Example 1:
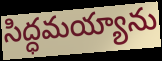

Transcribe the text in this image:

సిద్ధమయ్యాను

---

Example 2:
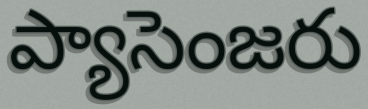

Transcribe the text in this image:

ప్యాసెంజరు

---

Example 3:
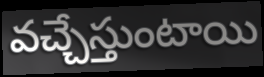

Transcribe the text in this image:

వచ్చేస్తుంటాయి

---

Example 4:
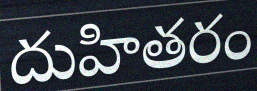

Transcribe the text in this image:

దుహితరం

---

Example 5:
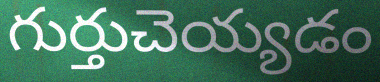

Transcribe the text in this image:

గుర్తుచెయ్యడం